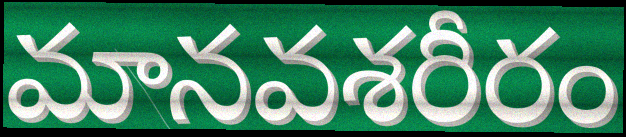
మానవశరీరం